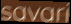
savari